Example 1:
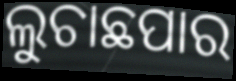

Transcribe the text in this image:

ଲୁଚାଛପାର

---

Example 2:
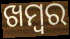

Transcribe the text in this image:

ଖମ୍ୱର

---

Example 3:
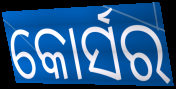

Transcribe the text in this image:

କୋର୍ସର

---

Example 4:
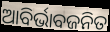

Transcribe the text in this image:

ଆବିର୍ଭାବଜନିତ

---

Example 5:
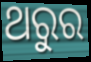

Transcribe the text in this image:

ଥରୁର